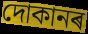
দোকানৰ